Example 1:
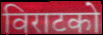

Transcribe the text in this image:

विराटको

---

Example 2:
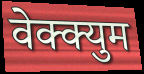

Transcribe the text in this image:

वेक्क्युम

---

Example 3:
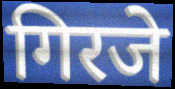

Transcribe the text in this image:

गिरजे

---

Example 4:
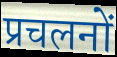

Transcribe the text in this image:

प्रचलनों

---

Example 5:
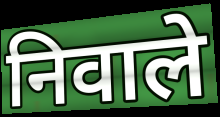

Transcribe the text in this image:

निवाले